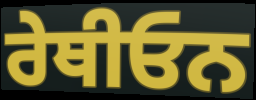
ਰੇਥੀਓਨ